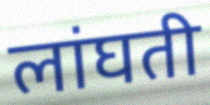
लांघती